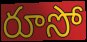
రూసో